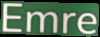
Emre